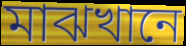
মাঝখানে